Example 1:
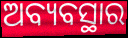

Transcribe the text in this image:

ଅବ୍ୟବସ୍ଥାର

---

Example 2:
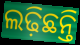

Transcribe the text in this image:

ଲଢ଼ିଛନ୍ତି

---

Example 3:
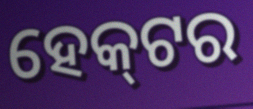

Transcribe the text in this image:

ହେକ୍‌ଟର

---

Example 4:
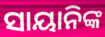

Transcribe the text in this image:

ସାୟାନିଙ୍କ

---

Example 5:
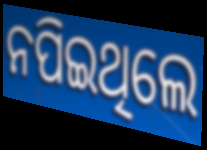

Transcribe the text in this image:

ନପିଇଥିଲେ